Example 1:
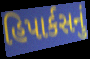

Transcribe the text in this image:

હિપાર્કસનું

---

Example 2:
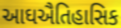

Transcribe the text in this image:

આઘઐતિહાસિક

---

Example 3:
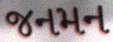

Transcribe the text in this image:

જનમન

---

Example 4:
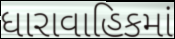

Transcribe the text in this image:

ધારાવાહિકમાં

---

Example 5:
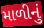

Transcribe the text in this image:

માળીનું